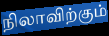
நிலாவிற்கும்